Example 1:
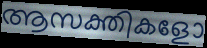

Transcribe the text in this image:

ആസക്തികളോ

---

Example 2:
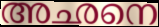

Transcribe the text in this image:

അഛനെ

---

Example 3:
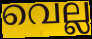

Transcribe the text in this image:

വെല്ല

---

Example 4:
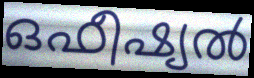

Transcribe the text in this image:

ഒഫീഷ്യൽ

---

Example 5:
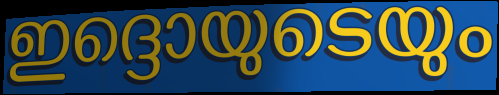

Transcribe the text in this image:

ഇദ്ദൊയുടെയും